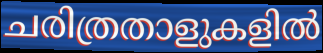
ചരിത്രതാളുകളിൽ